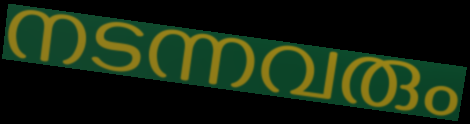
നടന്നവരും